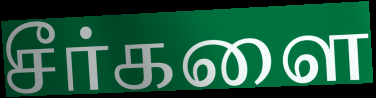
சீர்களை